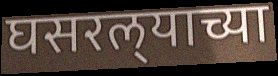
घसरल्याच्या